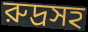
রুদ্রসহ